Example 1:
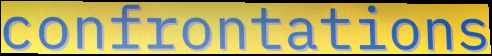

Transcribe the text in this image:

confrontations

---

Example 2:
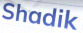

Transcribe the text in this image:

Shadik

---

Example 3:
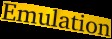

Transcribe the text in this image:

Emulation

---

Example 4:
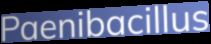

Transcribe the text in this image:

Paenibacillus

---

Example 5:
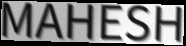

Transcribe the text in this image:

MAHESH